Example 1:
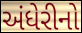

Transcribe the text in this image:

અંધેરીનો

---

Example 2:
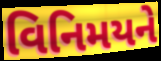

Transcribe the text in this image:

વિનિમયને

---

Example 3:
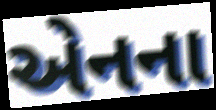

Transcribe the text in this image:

એનના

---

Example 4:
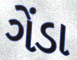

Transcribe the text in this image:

ગેંડા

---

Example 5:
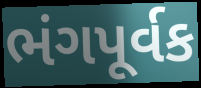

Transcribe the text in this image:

ભંગપૂર્વક